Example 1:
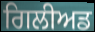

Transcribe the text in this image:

ਗਿਲੀਅਡ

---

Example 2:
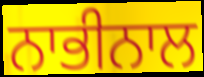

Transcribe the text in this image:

ਨਾਭੀਨਾਲ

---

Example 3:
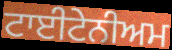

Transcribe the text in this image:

ਟਾਈਟੇਨੀਅਮ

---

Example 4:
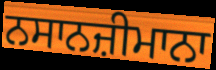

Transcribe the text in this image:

ਨਸਾਨਜ਼ੀਮਾਨਾ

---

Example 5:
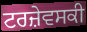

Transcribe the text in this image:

ਟਰਜ਼ੇਵਸਕੀ